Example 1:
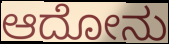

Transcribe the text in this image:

ಆದೋನು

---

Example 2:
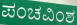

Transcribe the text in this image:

ಪಂಚವಿಂಶ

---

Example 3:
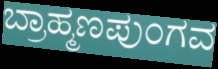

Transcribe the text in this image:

ಬ್ರಾಹ್ಮಣಪುಂಗವ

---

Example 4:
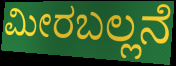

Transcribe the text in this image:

ಮೀರಬಲ್ಲನೆ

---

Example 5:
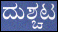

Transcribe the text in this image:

ದುಶ್ಚಟ